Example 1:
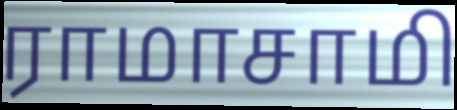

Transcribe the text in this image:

ராமாசாமி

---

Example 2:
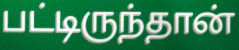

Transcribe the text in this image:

பட்டிருந்தான்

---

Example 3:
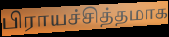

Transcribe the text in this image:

பிராயச்சித்தமாக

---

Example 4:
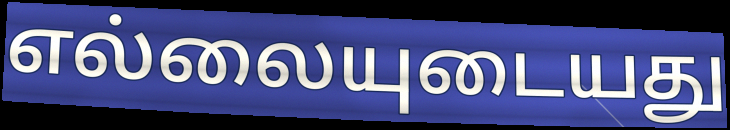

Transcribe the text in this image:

எல்லையுடையது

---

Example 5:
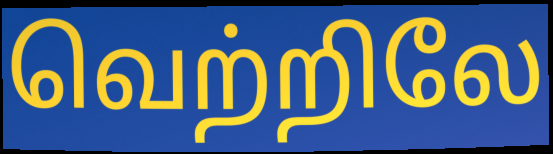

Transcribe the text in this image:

வெற்றிலே